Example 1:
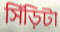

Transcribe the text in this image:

সিঁড়িটা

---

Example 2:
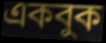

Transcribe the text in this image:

একবুক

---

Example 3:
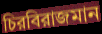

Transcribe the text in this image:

চিরবিরাজমান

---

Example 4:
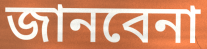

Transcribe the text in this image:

জানবেনা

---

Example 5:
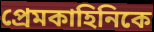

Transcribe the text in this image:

প্রেমকাহিনিকে